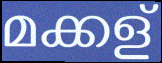
മക്കള്